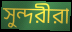
সুন্দরীরা